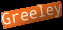
Greeley